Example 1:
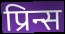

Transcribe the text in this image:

प्रिन्स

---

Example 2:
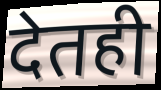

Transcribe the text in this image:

देतही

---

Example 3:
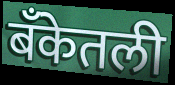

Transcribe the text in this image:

बँकेतली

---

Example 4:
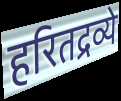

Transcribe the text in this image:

हरितद्रव्ये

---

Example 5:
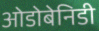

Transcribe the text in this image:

ओडोबेनिडी